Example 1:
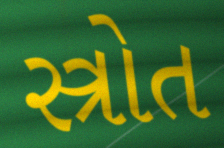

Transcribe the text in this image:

સ્ત્રોત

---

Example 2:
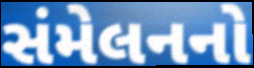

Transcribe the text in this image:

સંમેલનનો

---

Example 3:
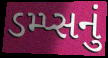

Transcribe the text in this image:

ડમ્પ્સનું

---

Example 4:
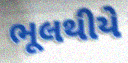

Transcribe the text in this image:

ભૂલથીયે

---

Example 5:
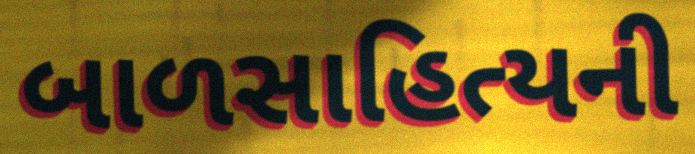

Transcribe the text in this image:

બાળસાહિત્યની